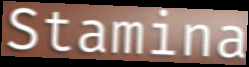
Stamina